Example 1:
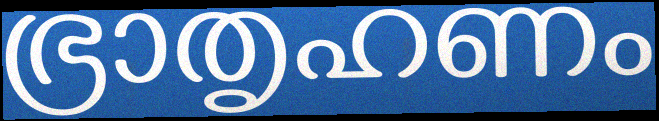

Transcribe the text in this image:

ഭ്രാതൃഹണം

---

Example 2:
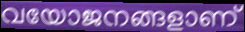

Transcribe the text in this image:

വയോജനങ്ങളാണ്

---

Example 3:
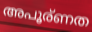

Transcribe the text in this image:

അപൂര്ണത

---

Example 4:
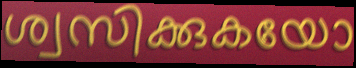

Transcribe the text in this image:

ശ്വസിക്കുകയോ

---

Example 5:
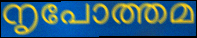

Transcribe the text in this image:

നൃപോത്തമ